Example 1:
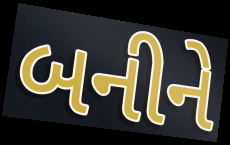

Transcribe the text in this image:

બનીને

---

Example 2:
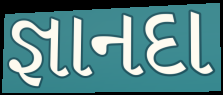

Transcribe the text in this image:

જ્ઞાનદા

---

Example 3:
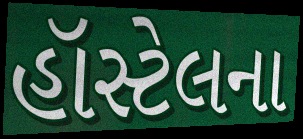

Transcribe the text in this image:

હૉસ્ટેલના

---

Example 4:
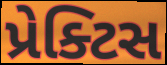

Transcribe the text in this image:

પ્રેક્ટિસ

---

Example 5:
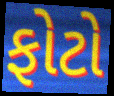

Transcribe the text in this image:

ફોટો